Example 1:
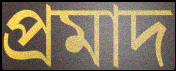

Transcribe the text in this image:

প্রমাদ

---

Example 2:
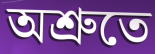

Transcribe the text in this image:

অশ্রুতে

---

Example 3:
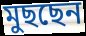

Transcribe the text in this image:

মুছছেন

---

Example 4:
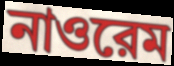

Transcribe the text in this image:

নাওরেম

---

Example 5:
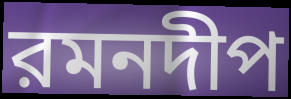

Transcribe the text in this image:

রমনদীপ